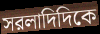
সরলাদিদিকে